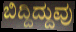
ಬಿದ್ದಿದ್ದುವು